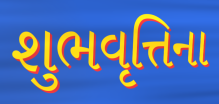
શુભવૃત્તિના